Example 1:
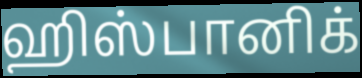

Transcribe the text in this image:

ஹிஸ்பானிக்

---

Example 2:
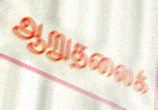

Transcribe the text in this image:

ஆறுதலைக்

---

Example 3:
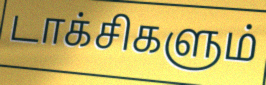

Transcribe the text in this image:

டாக்சிகளும்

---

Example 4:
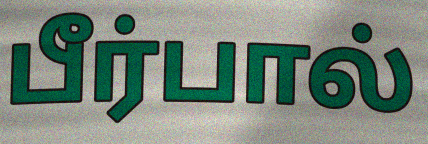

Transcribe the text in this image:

பீர்பால்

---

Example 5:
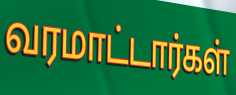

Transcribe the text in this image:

வரமாட்டார்கள்